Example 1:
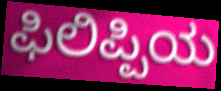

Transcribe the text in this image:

ಫಿಲಿಪ್ಪಿಯ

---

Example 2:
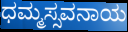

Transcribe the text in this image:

ಧಮ್ಮಸ್ಸವನಾಯ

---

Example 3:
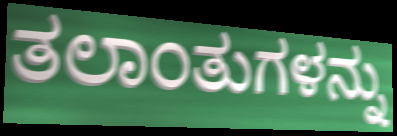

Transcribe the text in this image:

ತಲಾಂತುಗಳನ್ನು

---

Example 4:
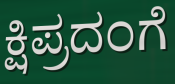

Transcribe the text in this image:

ಕ್ಷಿಪ್ರದಂಗೆ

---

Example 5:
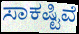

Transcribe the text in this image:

ಸಾಕಷ್ಟಿವೆ